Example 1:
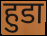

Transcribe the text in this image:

हुडा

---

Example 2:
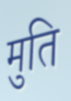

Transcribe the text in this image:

मुति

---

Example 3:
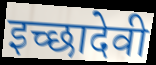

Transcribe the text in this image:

इच्छादेवी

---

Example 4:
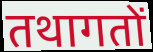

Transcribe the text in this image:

तथागतों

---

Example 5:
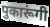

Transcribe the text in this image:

पुकारूंगी